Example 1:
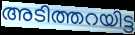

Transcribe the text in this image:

അടിത്തറയിട്ട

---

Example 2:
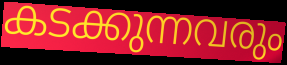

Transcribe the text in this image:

കടക്കുന്നവരും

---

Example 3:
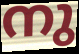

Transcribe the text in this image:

നു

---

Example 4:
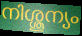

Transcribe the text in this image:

നിശ്ശൂന്യം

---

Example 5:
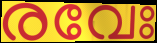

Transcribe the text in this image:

രവേഃ